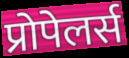
प्रोपेलर्स